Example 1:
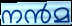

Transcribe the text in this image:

നൻമ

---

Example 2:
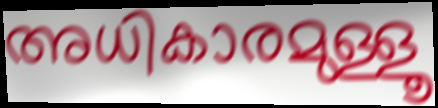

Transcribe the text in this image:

അധികാരമുള്ളൂ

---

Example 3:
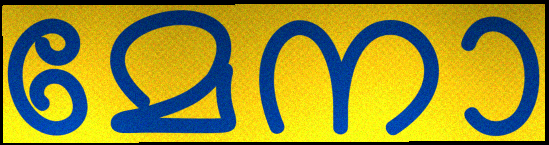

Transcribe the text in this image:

മേനാ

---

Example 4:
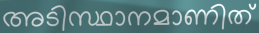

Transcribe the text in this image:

അടിസ്ഥാനമാണിത്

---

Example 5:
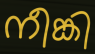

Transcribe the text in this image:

നീങ്കി